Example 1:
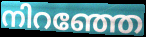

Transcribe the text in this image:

നിറഞ്ഞേ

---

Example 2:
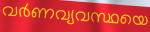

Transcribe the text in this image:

വർണവ്യവസ്ഥയെ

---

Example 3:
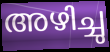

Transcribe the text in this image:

അഴിച്ചു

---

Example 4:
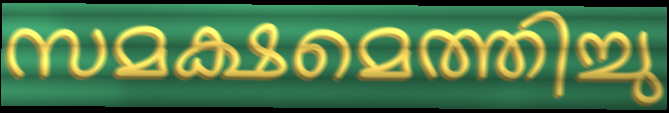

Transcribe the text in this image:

സമക്ഷമെത്തിച്ചു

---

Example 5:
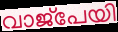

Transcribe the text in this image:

വാജ്പേയി